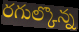
రగుల్కొన్న